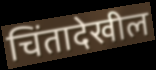
चिंतादेखील